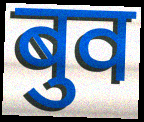
बुव